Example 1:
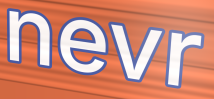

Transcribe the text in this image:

nevr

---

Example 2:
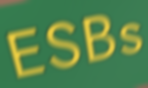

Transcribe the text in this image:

ESBs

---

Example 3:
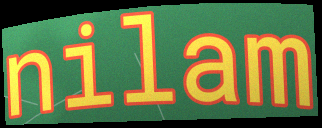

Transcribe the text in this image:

nilam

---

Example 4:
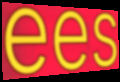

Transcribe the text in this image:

ees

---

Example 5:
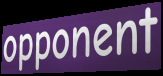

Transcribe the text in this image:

opponent